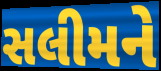
સલીમને